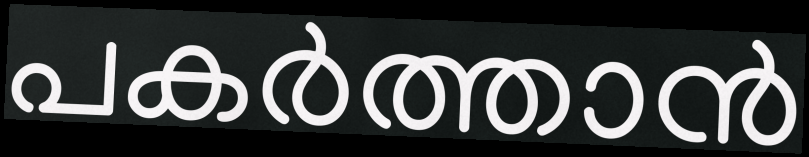
പകർത്താൻ